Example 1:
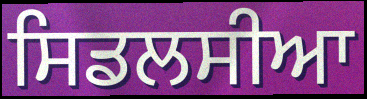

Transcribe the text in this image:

ਸਿਡਲਸੀਆ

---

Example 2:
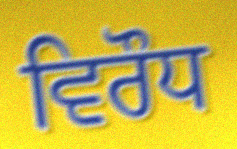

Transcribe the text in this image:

ਵਿਰੌਧ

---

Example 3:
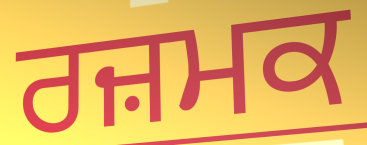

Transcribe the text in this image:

ਰਜ਼ਮਕ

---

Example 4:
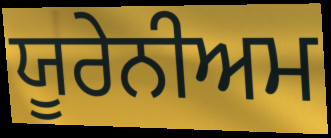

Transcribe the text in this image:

ਯੂਰੇਨੀਅਮ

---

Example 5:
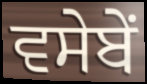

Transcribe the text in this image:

ਵਸੇਬੇਂ